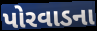
પોરવાડના